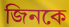
জিনকে